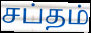
சப்தம்